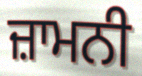
ਜ਼ਾਮਨੀ